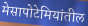
मेसापोटेमियांतील